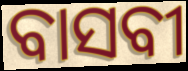
ବାସବୀ